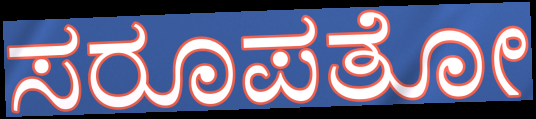
ಸರೂಪತೋ